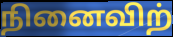
நினைவிற்